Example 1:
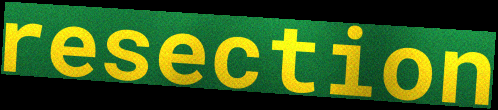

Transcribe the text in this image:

resection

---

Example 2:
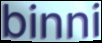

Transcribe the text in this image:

binni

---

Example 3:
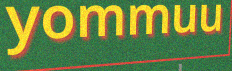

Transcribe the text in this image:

yommuu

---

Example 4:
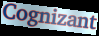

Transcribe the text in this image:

Cognizant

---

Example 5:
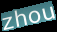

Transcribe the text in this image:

zhou